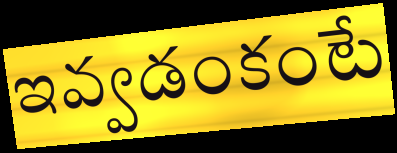
ఇవ్వడంకంటే